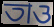
তাও